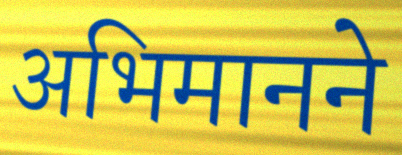
अभिमानने